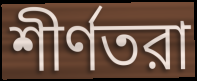
শীর্ণতরা